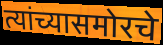
त्यांच्यासमोरचे